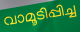
വാമൂടിപ്പിച്ച